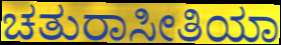
ಚತುರಾಸೀತಿಯಾ